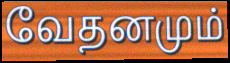
வேதனமும்